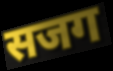
सजग